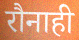
रौनाही